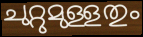
ചുറ്റുമുള്ളതും